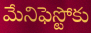
మేనిఫెస్టోకు